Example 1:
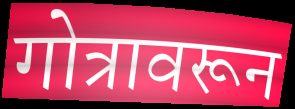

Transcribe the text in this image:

गोत्रावरून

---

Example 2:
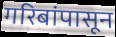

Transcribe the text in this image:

गरिबांपासून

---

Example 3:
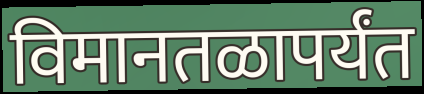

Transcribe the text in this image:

विमानतळापर्यंत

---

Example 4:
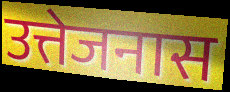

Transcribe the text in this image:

उत्तेजनास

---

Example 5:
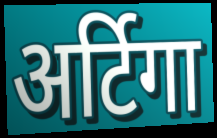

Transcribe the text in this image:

अर्टिगा